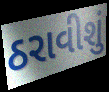
ઠરાવીશું